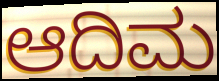
ಆದಿಮ